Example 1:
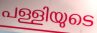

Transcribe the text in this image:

പള്ളിയുടെ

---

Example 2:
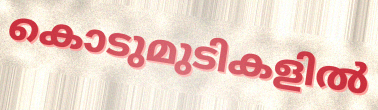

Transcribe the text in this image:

കൊടുമുടികളിൽ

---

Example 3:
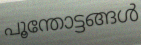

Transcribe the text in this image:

പൂന്തോട്ടങ്ങൾ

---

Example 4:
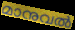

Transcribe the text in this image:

മാനുവൽ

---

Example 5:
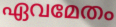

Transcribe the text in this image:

ഏവമേതം